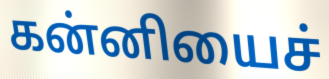
கன்னியைச்